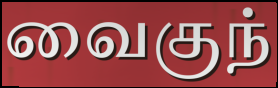
வைகுந்